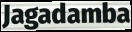
Jagadamba